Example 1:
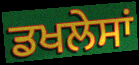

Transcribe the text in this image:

ਡਖਲੇਸਾਂ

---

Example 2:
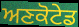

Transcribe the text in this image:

ਅਣਕੋਟੇਡ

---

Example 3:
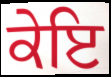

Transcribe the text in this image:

ਕੇਇ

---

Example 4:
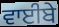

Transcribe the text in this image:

ਵਾਈਬੇ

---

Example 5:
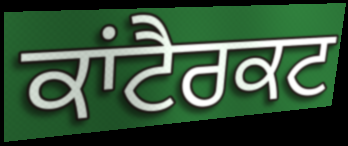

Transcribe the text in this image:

ਕਾਂਟੈਰਕਟ